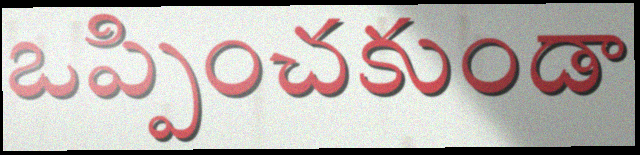
ఒప్పించకుండా